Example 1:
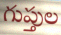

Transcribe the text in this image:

గుప్తుల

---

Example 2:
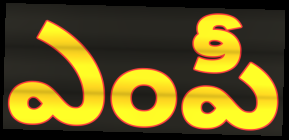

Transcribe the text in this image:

ఎంపీ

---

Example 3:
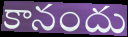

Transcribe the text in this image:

కానందు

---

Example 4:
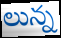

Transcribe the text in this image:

లున్న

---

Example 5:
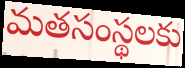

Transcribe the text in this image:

మతసంస్థలకు